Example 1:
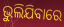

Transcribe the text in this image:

ଭୁଲିଯିବାରେ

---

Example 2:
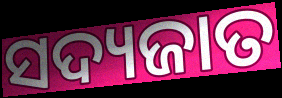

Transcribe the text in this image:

ସଦ୍ୟଜାତ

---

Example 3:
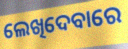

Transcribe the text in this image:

ଲେଖିଦେବାରେ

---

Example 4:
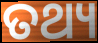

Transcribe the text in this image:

ତଥ୍ୟ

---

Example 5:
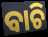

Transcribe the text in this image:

ବାଚି